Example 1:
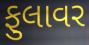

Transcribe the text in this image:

ફુલાવર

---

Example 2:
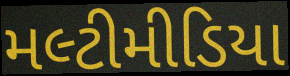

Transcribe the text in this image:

મલ્ટીમીડિયા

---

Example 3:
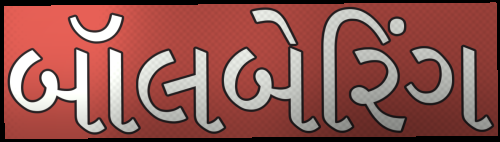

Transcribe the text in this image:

બૉલબેરિંગ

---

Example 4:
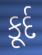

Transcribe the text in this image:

કૂર્દ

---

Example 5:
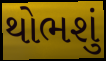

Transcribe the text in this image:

થોભશું